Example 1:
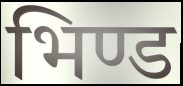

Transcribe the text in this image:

भिण्‍ड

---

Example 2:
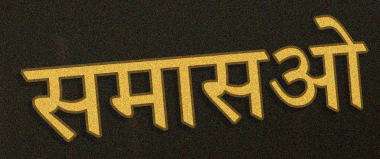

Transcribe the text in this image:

समासओ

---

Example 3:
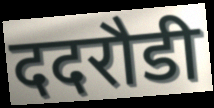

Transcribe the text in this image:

ददरौडी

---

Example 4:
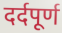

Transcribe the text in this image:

दर्दपूर्ण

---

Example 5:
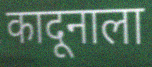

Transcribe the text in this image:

कादूनाला